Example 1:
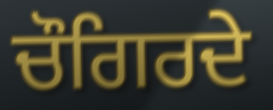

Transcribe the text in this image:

ਚੌਗਿਰਦੇ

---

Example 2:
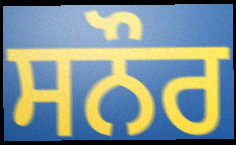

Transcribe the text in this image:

ਸਨੌਰ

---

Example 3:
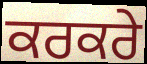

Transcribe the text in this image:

ਕਰਕਰੇ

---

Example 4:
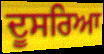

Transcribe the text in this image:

ਦੂਸਰਿਆ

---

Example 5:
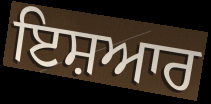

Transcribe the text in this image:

ਇਸ਼ਆਰ